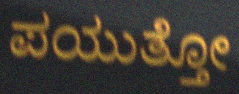
ಪಯುತ್ತೋ